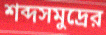
শব্দসমুদ্রের